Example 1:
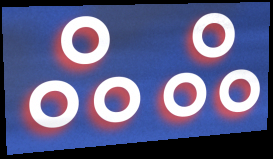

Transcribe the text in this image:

ஃஃ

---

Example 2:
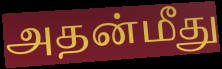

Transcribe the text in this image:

அதன்மீது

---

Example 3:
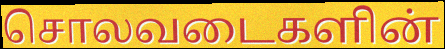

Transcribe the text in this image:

சொலவடைகளின்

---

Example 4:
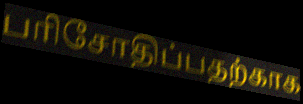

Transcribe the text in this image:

பரிசோதிப்பதற்காக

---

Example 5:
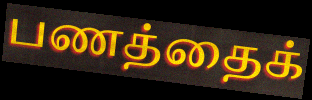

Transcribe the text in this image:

பணத்தைக்